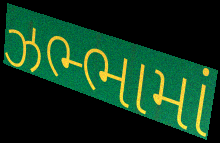
ઝભ્ભામાં